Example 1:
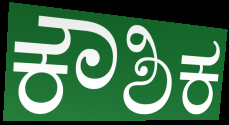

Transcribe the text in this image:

ಕೌಶಿಕ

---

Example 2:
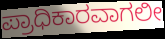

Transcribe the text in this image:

ಪ್ರಾಧಿಕಾರವಾಗಲೀ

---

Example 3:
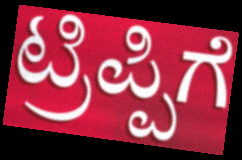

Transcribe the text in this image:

ಟ್ರಿಪ್ಪಿಗೆ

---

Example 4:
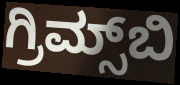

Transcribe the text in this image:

ಗ್ರಿಮ್ಸ್‌ಬಿ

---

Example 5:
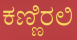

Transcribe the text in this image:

ಕಣ್ಣಿರಲಿ